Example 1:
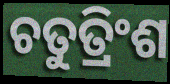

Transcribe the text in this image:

ଚତୁତ୍ରିଂଶ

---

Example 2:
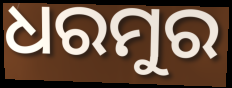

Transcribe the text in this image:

ଧରମୁର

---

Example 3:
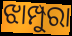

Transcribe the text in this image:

ଝାମ୍ପୁରା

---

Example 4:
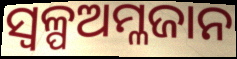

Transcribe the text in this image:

ସ୍ୱଳ୍ପଅମ୍ଳଜାନ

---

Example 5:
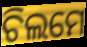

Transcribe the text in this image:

ଚିଲମେ